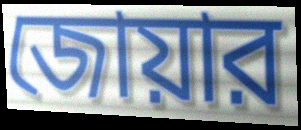
জোয়ার